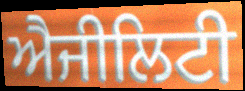
ਐਜੀਲਿਟੀ